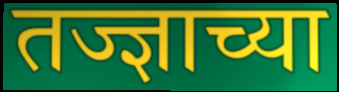
तज्ज्ञाच्या